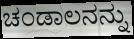
ಚಂಡಾಲನನ್ನು